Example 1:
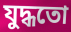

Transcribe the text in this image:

যুদ্ধতো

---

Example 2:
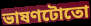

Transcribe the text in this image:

ভাষণটোতো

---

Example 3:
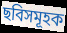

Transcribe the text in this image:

ছবিসমূহক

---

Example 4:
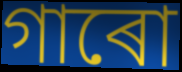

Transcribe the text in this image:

গাৰো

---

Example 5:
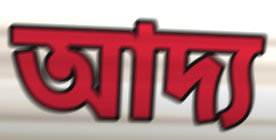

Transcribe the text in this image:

আদ্য